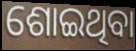
ଶୋଇଥିବା